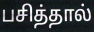
பசித்தால்